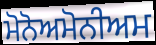
ਮੋਨੋਅਮੋਨੀਅਮ